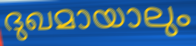
ദുഖമായാലും